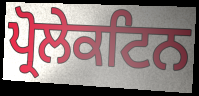
ਪ੍ਰੋਲੇਕਟਿਨ